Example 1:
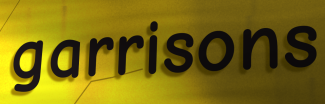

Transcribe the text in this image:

garrisons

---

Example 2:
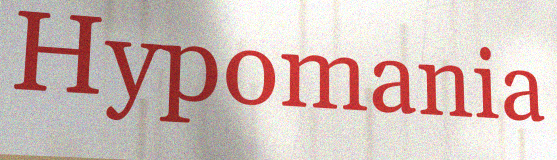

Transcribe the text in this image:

Hypomania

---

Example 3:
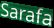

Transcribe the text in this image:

Sarafa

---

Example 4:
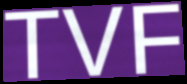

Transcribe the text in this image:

TVF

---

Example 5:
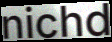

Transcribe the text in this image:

nichd